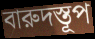
বারুদস্তূপ